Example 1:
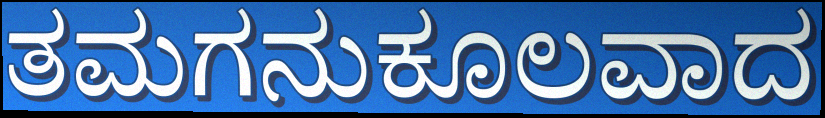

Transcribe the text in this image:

ತಮಗನುಕೂಲವಾದ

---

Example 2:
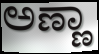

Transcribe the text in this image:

ಅಣ್ಣಾ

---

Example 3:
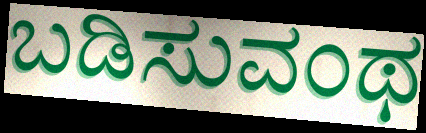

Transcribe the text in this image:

ಬಡಿಸುವಂಥ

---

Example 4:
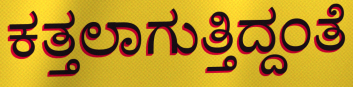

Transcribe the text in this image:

ಕತ್ತಲಾಗುತ್ತಿದ್ದಂತೆ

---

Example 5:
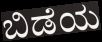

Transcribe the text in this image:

ಬಿಡೆಯ